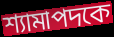
শ্যামাপদকে